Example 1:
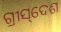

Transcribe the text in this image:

ଗ୍ରୀସ୍‌ଦେଶ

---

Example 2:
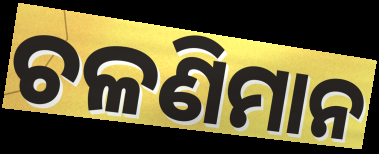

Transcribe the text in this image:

ଚଳଣିମାନ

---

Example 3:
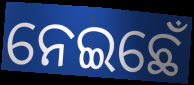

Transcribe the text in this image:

ନେଇଛେଁ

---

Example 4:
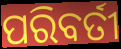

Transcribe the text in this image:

ପରିବର୍ତୀ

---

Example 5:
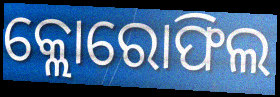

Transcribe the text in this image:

କ୍ଲୋରୋଫିଲ